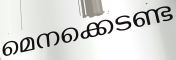
മെനക്കെടണ്ട